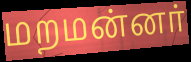
மறமன்னர்